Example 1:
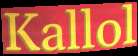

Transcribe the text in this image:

Kallol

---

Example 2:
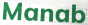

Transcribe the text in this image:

Manab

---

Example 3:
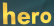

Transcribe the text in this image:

hero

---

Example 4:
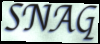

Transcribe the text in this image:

SNAG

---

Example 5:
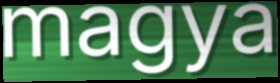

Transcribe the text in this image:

magya